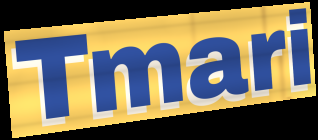
Tmari